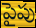
పైపు